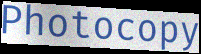
Photocopy